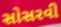
સોસરવી